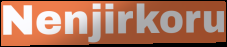
Nenjirkoru